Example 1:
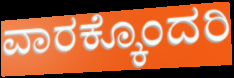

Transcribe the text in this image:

ವಾರಕ್ಕೊಂದರಿ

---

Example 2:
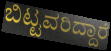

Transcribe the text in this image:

ಬಿಟ್ಟವರಿದ್ದಾರೆ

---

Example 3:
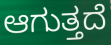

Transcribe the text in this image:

ಆಗುತ್ತದೆ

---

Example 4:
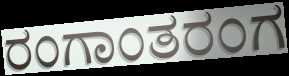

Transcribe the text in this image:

ರಂಗಾಂತರಂಗ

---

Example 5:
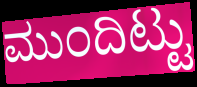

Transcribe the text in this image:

ಮುಂದಿಟ್ಟು